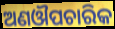
ଅଣଔପଚାରିକ